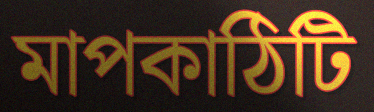
মাপকাঠিটি